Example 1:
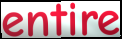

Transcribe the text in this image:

entire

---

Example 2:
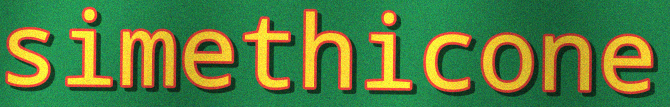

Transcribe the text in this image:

simethicone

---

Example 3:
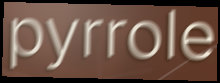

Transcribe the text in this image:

pyrrole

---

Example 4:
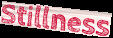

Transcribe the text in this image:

Stillness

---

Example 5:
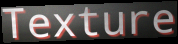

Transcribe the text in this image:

Texture